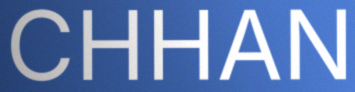
CHHAN